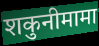
शकुनीमामा